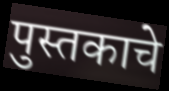
पुस्तकाचे